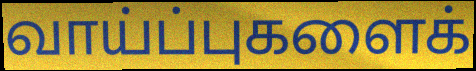
வாய்ப்புகளைக்